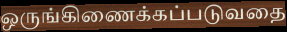
ஒருங்கிணைக்கப்படுவதை